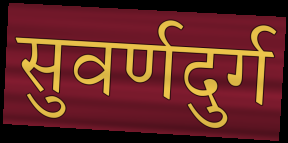
सुवर्णदुर्ग